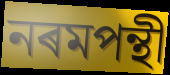
নৰমপন্থী